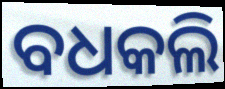
ବଧକଲି